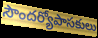
సౌందర్యోపాసకులు